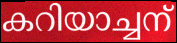
കറിയാച്ചന്